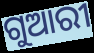
ଗୁଆରୀ